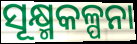
ସୂକ୍ଷ୍ମକଳ୍ପନା